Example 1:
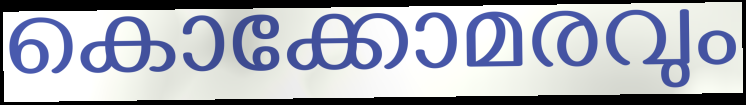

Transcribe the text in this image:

കൊക്കോമരവും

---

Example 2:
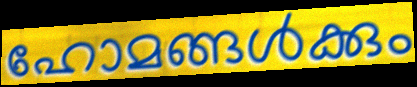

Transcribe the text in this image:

ഹോമങ്ങൾക്കും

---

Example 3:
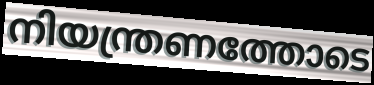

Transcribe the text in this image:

നിയന്ത്രണത്തോടെ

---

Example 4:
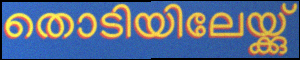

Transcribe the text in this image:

തൊടിയിലേയ്ക്കു്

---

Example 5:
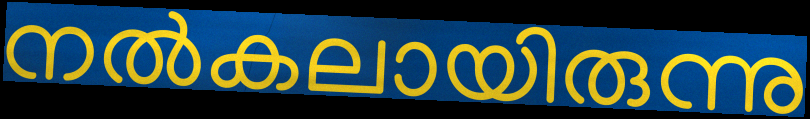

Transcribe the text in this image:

നൽകലായിരുന്നു